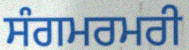
ਸੰਗਮਰਮਰੀ